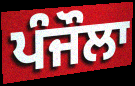
ਪੰਜੌਲਾ